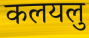
कलयलु